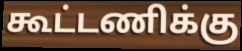
கூட்டணிக்கு